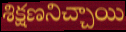
శిక్షణనిచ్చాయి